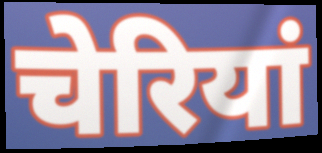
चेरियां